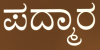
ಪದ್ಮಾರ